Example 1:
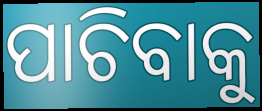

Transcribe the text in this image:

ପାଚିବାକୁ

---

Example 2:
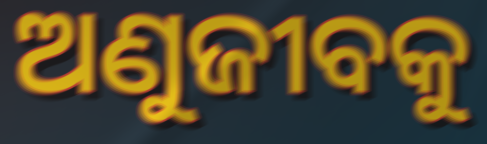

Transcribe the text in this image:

ଅଣୁଜୀବକୁ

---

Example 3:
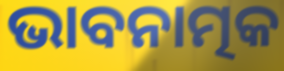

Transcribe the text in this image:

ଭାବନାତ୍ମକ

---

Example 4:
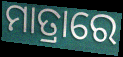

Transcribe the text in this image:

ମାତ୍ରାରେ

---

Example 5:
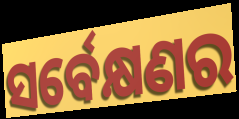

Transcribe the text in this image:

ସର୍ବେକ୍ଷଣର